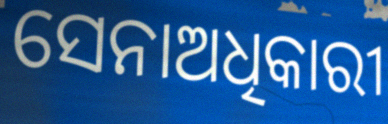
ସେନାଅଧିକାରୀ